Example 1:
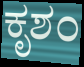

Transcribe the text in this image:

ಕೃಶಂ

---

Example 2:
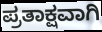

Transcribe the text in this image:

ಪ್ರತಾಕ್ಷವಾಗಿ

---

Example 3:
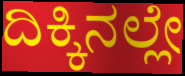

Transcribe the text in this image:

ದಿಕ್ಕಿನಲ್ಲೇ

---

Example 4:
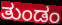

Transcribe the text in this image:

ತುಂಡಂ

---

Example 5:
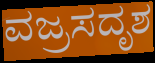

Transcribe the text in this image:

ವಜ್ರಸದೃಶ